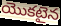
యొకటైన